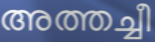
അത്തച്ചീ